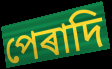
পেৰাদি